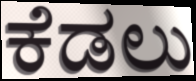
ಕೆಡಲು